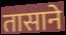
तासाने